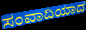
ಸಂವಾದಿಯಾದ